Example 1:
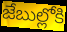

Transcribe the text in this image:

జేబుల్లోకి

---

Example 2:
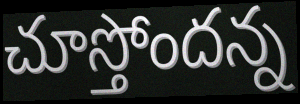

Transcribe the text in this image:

చూస్తోందన్న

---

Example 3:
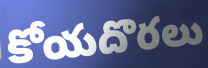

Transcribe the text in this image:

కోయదొరలు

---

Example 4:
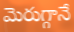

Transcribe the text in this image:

మెరుగ్గానే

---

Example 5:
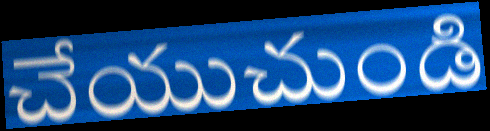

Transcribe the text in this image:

చేయుచుండి